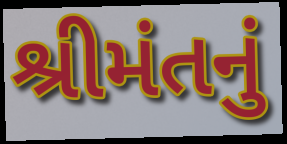
શ્રીમંતનું